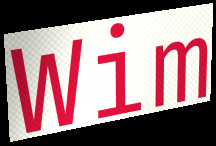
Wim